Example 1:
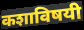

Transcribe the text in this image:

कशाविषयी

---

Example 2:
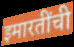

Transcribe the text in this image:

इमारतींची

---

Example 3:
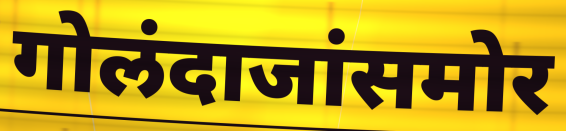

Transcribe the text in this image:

गोलंदाजांसमोर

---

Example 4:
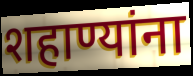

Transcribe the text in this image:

शहाण्यांना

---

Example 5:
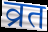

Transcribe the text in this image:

व्रत